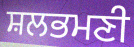
ਸ਼ਲਭਮਣੀ